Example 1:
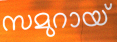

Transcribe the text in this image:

സമുറായ്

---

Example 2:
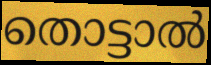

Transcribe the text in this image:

തൊട്ടാൽ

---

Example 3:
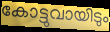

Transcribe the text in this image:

കോട്ടുവായിടും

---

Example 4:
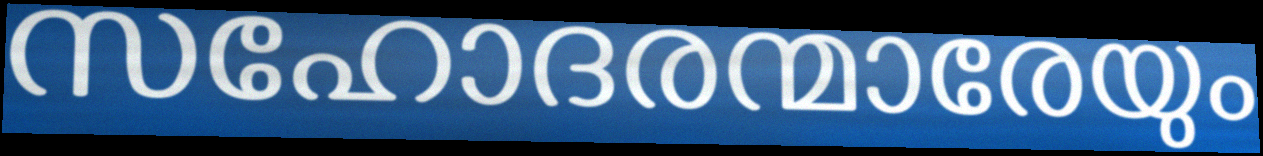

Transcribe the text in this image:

സഹോദരന്മാരേയും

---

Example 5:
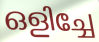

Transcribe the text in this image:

ഒളിച്ചേ